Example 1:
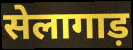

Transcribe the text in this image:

सेलागाड़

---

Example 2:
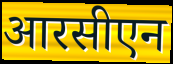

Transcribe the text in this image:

आरसीएन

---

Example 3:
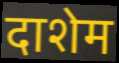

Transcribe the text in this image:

दाशेम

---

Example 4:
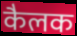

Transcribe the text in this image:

कैलक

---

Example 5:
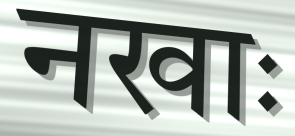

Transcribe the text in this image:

नखाः